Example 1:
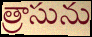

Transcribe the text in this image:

త్రాసును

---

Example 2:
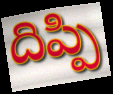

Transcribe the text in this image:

దిప్పి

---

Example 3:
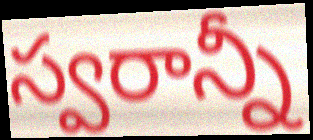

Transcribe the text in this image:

స్వరాన్నీ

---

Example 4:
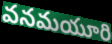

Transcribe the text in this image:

వనమయూరి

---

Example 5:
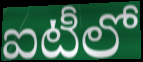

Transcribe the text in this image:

ఐటీలో